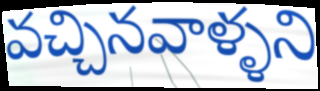
వచ్చినవాళ్ళని